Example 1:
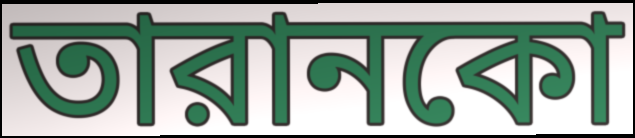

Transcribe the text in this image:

তারানকো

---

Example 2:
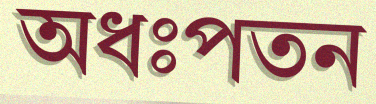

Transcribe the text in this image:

অধঃপতন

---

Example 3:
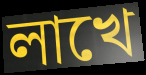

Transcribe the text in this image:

লাখে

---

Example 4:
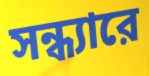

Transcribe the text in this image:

সন্ধ্যারে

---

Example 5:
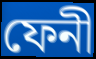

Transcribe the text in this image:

ফেনী